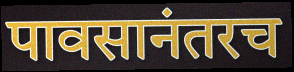
पावसानंतरच